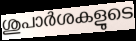
ശുപാർശകളുടെ